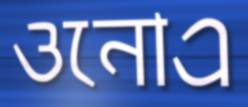
ওনোএ